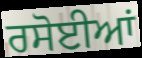
ਰਸੋਈਆਂ